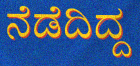
ನೆಡೆದಿದ್ದ